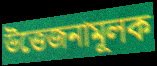
উত্তেজনামূলক